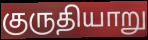
குருதியாறு